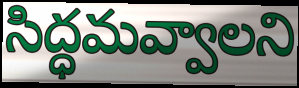
సిద్ధమవ్వాలని